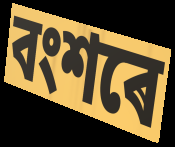
বংশৰে